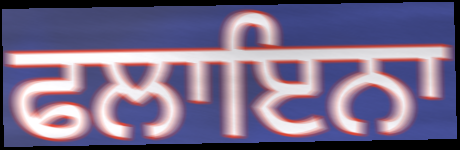
ਫਲਾਇਨਾ